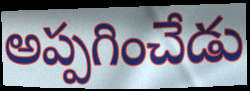
అప్పగించేడు